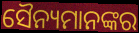
ସୈନ୍ୟମାନଙ୍କର